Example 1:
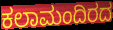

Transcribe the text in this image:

ಕಲಾಮಂದಿರದ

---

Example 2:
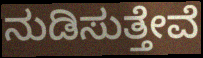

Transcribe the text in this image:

ನುಡಿಸುತ್ತೇವೆ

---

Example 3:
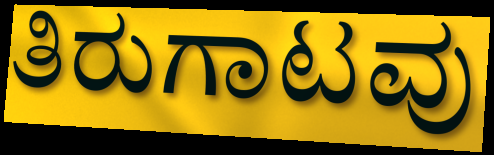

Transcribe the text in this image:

ತಿರುಗಾಟವು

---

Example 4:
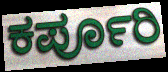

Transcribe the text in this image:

ಕರ್ಪೂರಿ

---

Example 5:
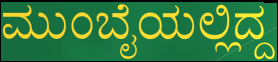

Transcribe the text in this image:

ಮುಂಬೈಯಲ್ಲಿದ್ದ